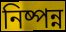
নিষ্পন্ন